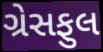
ગ્રેસફુલ